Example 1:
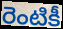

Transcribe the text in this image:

రెంటికీ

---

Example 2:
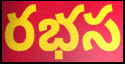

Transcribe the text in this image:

రభస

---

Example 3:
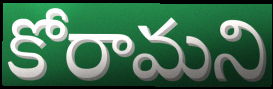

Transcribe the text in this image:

కోరామని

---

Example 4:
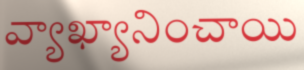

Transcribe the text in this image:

వ్యాఖ్యానించాయి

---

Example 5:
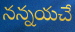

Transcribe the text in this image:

నన్నయచే